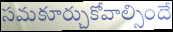
సమకూర్చుకోవాల్సిందే